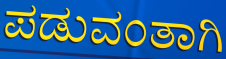
ಪಡುವಂತಾಗಿ